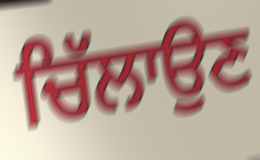
ਚਿੱਲਾਉਣ